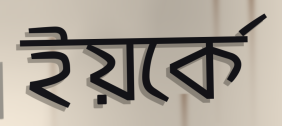
ইয়র্কে